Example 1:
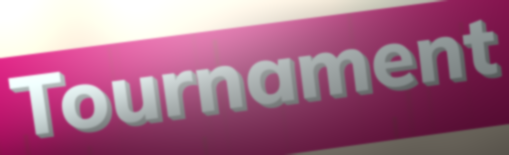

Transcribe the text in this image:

Tournament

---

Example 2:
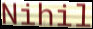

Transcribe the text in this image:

Nihil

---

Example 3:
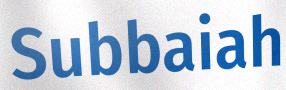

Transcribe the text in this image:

Subbaiah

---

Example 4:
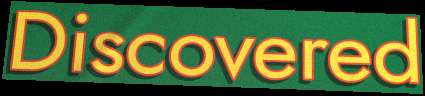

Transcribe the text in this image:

Discovered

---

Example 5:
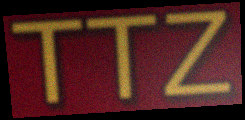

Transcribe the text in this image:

TTZ